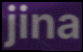
jina